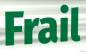
Frail